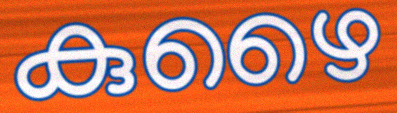
കുഴൈ